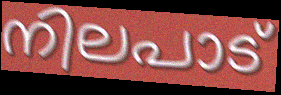
നിലപാട്